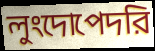
লুংদোপেদরি